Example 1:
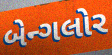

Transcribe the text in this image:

બેન્ગલોર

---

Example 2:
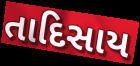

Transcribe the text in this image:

તાદિસાય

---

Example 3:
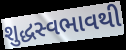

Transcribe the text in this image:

શુદ્ધસ્વભાવથી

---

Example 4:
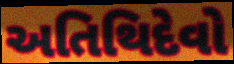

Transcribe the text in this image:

અતિથિદેવો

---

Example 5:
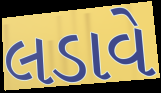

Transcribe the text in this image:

લડાવે